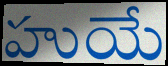
హుయే